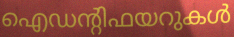
ഐഡന്റിഫയറുകൾ